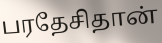
பரதேசிதான்